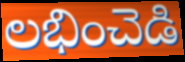
లభించెడి